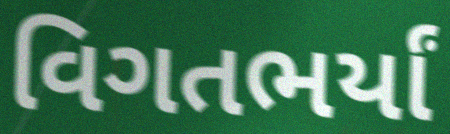
વિગતભર્યાં